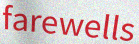
farewells